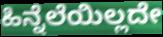
ಹಿನ್ನೆಲೆಯಿಲ್ಲದೇ